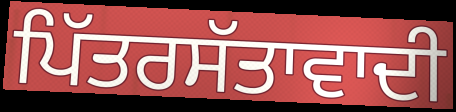
ਪਿੱਤਰਸੱਤਾਵਾਦੀ